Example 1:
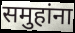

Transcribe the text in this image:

समुहांना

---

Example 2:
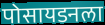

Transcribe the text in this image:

पोसायडनला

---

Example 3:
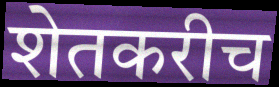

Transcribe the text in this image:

शेतकरीच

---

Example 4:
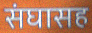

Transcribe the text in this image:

संघासह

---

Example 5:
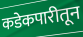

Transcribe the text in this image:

कडेकपारीतून